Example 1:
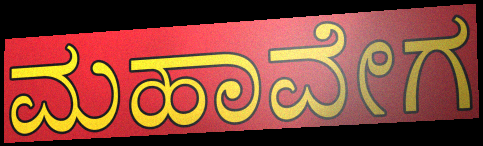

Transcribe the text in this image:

ಮಹಾವೇಗ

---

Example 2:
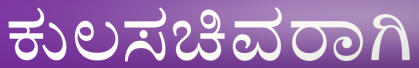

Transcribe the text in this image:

ಕುಲಸಚಿವರಾಗಿ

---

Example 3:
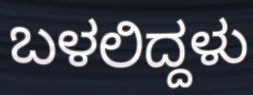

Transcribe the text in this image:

ಬಳಲಿದ್ದಳು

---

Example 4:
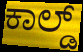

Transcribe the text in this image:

ಕಾಲ್ಡ್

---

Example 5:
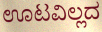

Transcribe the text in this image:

ಊಟವಿಲ್ಲದ